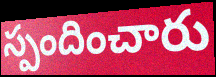
స్పందించారు